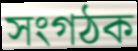
সংগঠক